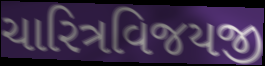
ચારિત્રવિજયજી